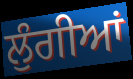
ਲੁੰਗੀਆਂ